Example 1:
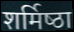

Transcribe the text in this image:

शर्मिष्‍ठा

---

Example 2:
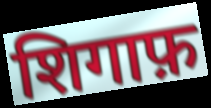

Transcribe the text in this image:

शिगाफ़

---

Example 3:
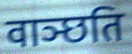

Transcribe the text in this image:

वाञ्छति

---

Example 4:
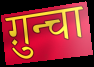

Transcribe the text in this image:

ग़ुन्चा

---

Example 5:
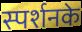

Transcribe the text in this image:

स्पर्शनके